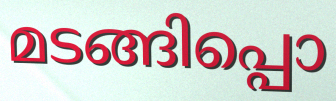
മടങ്ങിപ്പൊ